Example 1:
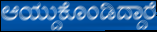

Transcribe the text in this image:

ಆಯ್ದುಕೊಂಡಿದ್ದಾರೆ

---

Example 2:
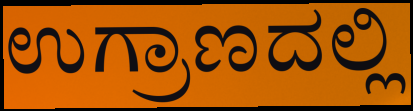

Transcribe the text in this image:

ಉಗ್ರಾಣದಲ್ಲಿ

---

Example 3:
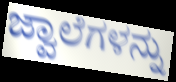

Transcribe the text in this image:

ಜ್ವಾಲೆಗಳನ್ನು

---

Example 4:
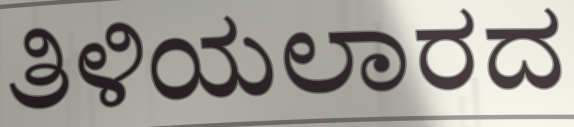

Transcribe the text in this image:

ತಿಳಿಯಲಾರದ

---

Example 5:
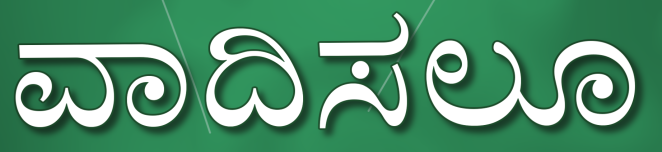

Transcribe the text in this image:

ವಾದಿಸಲೂ